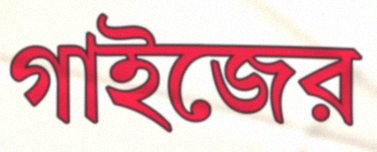
গাইজের